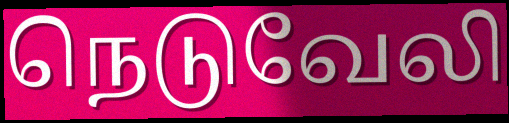
நெடுவேலி